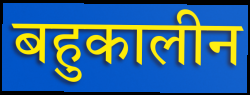
बहुकालीन